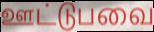
ஊட்டுபவை